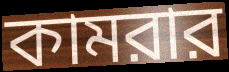
কামরার